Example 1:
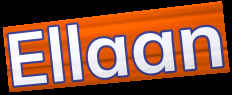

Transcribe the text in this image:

Ellaan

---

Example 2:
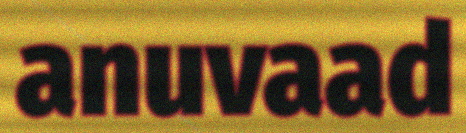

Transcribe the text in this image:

anuvaad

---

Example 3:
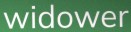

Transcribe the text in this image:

widower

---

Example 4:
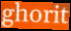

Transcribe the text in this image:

ghorit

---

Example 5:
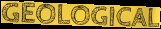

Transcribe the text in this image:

GEOLOGICAL